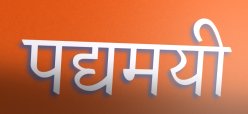
पद्यमयी